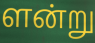
ளன்று